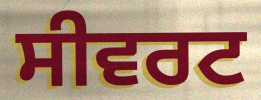
ਸੀਵਰਟ